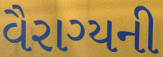
વૈરાગ્યની